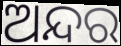
ଅନ୍ଦର